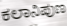
ಕಲಾನಿಪುಣ